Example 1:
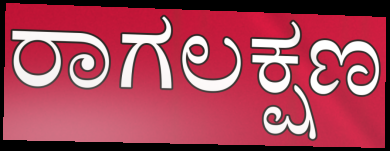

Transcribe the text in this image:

ರಾಗಲಕ್ಷಣ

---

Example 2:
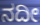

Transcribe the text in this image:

ನದೀ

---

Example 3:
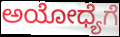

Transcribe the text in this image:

ಅಯೋಧ್ಯೆಗೆ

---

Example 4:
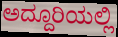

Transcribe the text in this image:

ಅದ್ದೂರಿಯಲ್ಲಿ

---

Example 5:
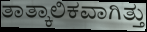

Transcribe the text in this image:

ತಾತ್ಕಾಲಿಕವಾಗಿತ್ತು